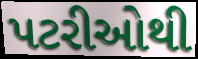
પટરીઓથી